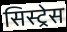
सिस्ट्रेस